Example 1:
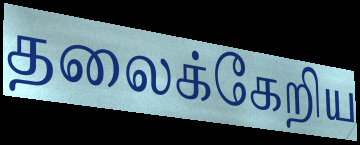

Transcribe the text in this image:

தலைக்கேறிய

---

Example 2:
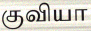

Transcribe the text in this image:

குவியா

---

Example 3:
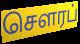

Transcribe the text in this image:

செளரப்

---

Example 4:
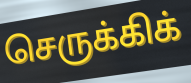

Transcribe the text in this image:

செருக்கிக்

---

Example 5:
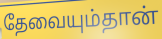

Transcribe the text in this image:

தேவையும்தான்